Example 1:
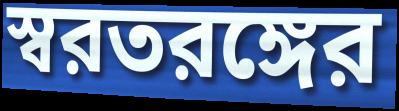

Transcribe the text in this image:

স্বরতরঙ্গের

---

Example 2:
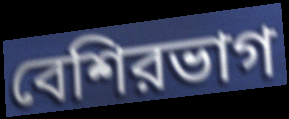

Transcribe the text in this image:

বেশিরভাগ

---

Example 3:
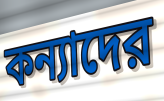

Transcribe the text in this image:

কন্যাদের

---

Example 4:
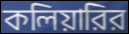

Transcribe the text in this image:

কলিয়ারির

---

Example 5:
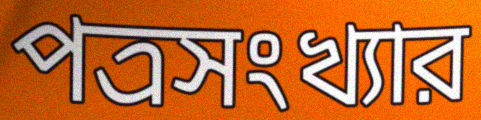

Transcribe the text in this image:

পত্রসংখ্যার